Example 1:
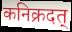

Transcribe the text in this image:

कनिक्रदत्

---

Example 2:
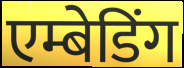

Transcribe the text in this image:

एम्बेडिंग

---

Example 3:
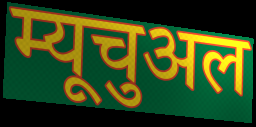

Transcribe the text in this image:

म्यूचुअल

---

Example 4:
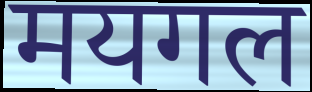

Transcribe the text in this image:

मयगल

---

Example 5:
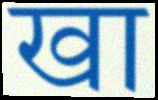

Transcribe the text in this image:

खा